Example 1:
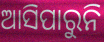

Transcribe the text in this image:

ଆସିପାରୁନି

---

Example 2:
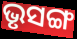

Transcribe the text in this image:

ଭୃସଙ୍ଗ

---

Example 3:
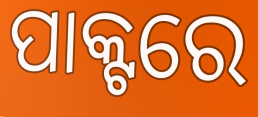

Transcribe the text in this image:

ପାକ୍ଟରେ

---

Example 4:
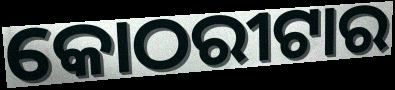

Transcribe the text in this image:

କୋଠରୀଟାର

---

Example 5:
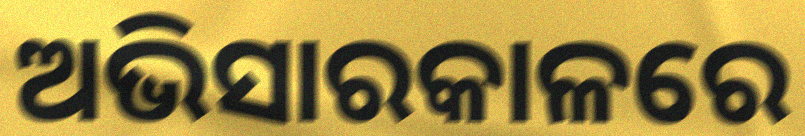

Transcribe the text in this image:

ଅଭିସାରକାଳରେ